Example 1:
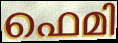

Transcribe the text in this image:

ഫെമി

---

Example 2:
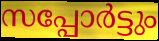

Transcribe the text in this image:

സപ്പോർട്ടും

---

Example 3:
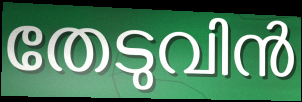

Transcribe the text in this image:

തേടുവിൻ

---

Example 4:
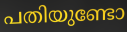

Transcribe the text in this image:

പതിയുണ്ടോ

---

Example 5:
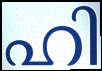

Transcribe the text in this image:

ഹി